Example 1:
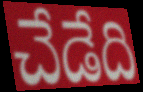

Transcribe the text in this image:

చేడేది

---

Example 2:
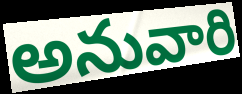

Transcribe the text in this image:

అనువారి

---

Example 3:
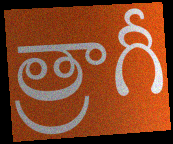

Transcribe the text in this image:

త్రాగీ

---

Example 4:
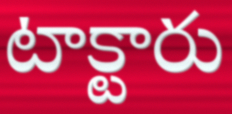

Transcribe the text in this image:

టాక్టారు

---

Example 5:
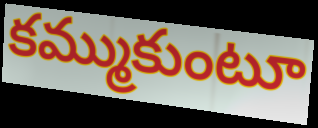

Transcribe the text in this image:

కమ్ముకుంటూ